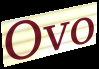
Ovo